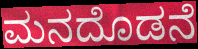
ಮನದೊಡನೆ